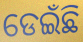
ଡେଇଁଛି